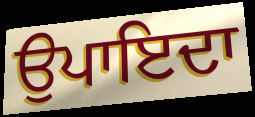
ਉਪਾਇਦਾ